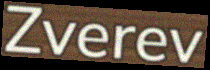
Zverev